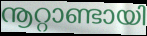
നൂറ്റാണ്ടായി